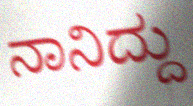
ನಾನಿದ್ದು